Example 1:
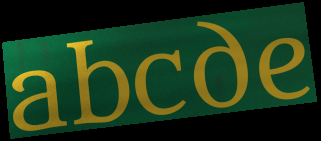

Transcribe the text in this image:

abcde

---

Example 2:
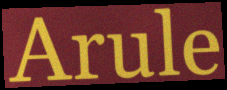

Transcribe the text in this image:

Arule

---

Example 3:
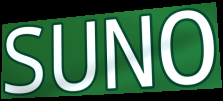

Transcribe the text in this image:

SUNO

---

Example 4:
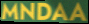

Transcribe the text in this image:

MNDAA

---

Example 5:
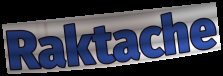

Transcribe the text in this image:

Raktache